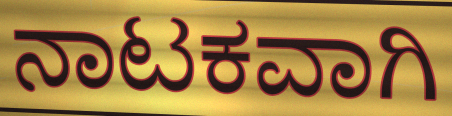
ನಾಟಕವಾಗಿ